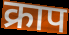
क्राप